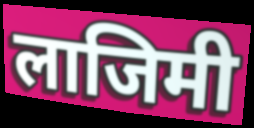
लाजिमी